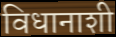
विधानाशी